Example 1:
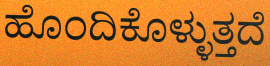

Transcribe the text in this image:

ಹೊಂದಿಕೊಳ್ಳುತ್ತದೆ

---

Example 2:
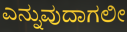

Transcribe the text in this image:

ಎನ್ನುವುದಾಗಲೀ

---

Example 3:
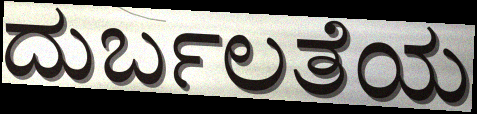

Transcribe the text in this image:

ದುರ್ಬಲತೆಯ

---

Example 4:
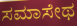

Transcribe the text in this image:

ಸಮಾಸೇಥ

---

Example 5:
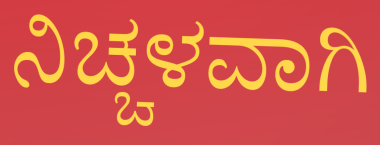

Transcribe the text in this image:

ನಿಚ್ಚಳವಾಗಿ